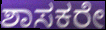
ಶಾಸಕರೇ